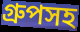
গ্রুপসহ